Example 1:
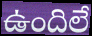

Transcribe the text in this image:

ఉందిలే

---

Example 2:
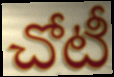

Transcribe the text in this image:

చోటీ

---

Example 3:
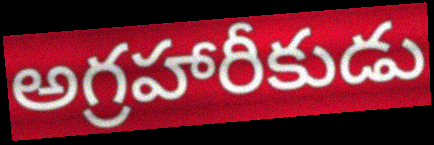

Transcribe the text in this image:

అగ్రహారీకుడు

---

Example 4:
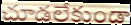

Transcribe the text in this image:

చూడలేకుండా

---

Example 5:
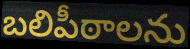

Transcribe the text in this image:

బలిపీఠాలను